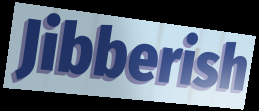
Jibberish